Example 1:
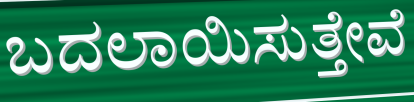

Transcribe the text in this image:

ಬದಲಾಯಿಸುತ್ತೇವೆ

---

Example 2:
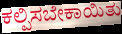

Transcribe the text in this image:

ಕಲ್ಪಿಸಬೇಕಾಯಿತು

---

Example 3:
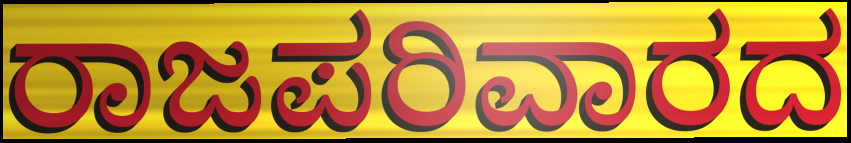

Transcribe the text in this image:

ರಾಜಪರಿವಾರದ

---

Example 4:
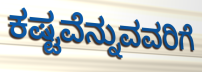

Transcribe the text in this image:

ಕಷ್ಟವೆನ್ನುವವರಿಗೆ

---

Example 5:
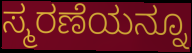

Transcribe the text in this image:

ಸ್ಮರಣೆಯನ್ನೂ